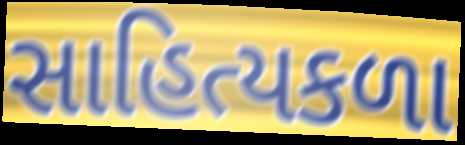
સાહિત્યકળા